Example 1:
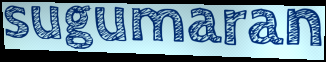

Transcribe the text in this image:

sugumaran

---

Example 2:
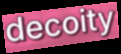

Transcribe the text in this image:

decoity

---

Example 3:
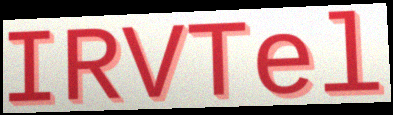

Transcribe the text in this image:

IRVTel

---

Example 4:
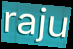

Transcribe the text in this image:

raju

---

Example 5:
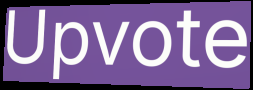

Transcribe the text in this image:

Upvote